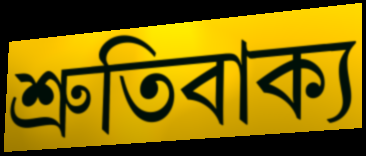
শ্রুতিবাক্য